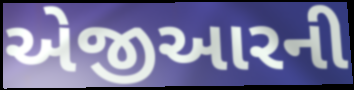
એજીઆરની